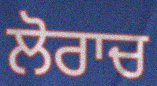
ਲੋਰਾਚ